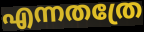
എന്നതത്രേ